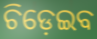
ଚିଡ଼େଇବ